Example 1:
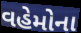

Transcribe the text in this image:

વહેમોના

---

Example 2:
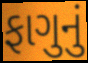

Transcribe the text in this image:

ફાગુનું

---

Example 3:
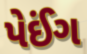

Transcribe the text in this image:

પેઈંગ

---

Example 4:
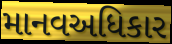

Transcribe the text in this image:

માનવઅધિકાર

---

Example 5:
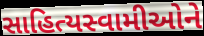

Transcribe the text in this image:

સાહિત્યસ્વામીઓને